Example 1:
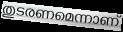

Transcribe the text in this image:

തുടരണമെന്നാണ്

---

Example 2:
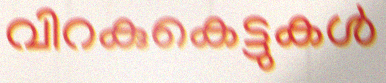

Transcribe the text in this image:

വിറകുകെട്ടുകൾ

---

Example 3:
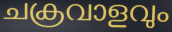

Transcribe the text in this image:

ചക്രവാളവും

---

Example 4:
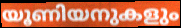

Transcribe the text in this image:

യൂണിയനുകളും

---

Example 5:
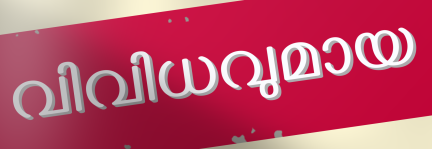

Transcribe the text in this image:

വിവിധവുമായ